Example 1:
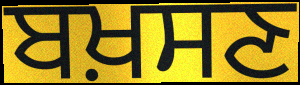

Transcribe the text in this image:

ਬਖ਼ਸਣ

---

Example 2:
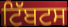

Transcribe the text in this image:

ਟਿੱਬਟਸ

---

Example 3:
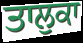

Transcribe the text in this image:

ਤਾਲੁਕਾ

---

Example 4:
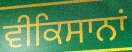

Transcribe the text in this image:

ਵੀਕਿਸਾਨਾਂ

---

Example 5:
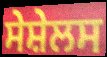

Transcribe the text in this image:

ਸੇਸ਼ੇਲਸ